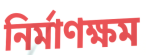
নির্মাণক্ষম